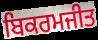
ਬਿਕਰਮਜੀਤ